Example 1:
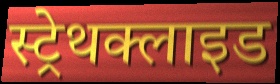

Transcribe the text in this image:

स्ट्रेथक्लाइड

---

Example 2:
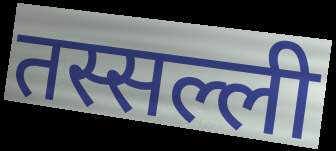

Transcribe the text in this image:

तस्सल्ली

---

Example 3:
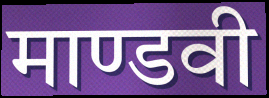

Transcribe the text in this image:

माण्डवी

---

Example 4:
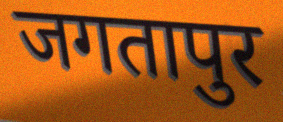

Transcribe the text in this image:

जगतापुर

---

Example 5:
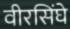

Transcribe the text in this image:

वीरसिंघे